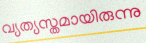
വ്യത്യസ്തമായിരുന്നു